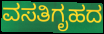
ವಸತಿಗೃಹದ